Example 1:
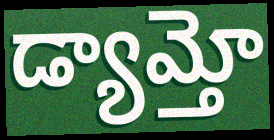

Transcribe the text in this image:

డ్యామ్తో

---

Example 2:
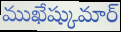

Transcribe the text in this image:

ముఖేష్కుమార్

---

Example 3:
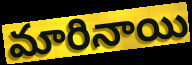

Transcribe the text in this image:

మారినాయి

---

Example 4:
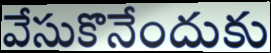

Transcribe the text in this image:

వేసుకొనేందుకు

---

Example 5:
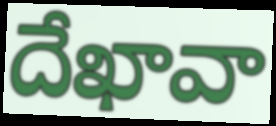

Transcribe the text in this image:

దేఖావా